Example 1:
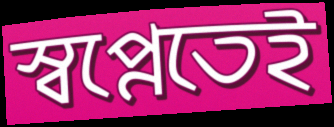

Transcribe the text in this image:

স্বপ্নেতেই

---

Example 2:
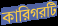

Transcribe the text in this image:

কারিগরটি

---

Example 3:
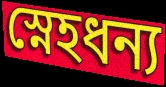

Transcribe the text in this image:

স্নেহধন্য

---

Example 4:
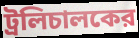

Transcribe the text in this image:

ট্রলিচালকের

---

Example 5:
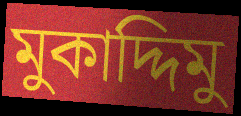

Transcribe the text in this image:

মুকাদ্দিমু